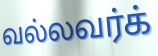
வல்லவர்க்